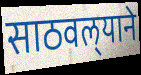
साठवल्याने